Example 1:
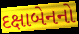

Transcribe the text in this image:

દક્ષાબેનનો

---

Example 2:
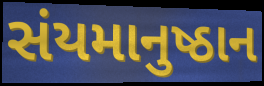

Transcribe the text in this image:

સંયમાનુષ્ઠાન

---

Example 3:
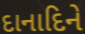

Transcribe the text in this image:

દાનાદિને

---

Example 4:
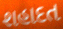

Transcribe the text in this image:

શહાદત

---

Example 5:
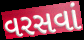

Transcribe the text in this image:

વરસવાં